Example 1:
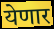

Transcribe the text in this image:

येणार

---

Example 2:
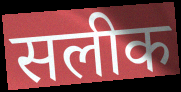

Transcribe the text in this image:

सलीक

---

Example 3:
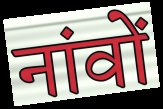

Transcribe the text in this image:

नांवों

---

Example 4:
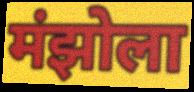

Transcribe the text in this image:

मंझोला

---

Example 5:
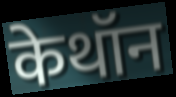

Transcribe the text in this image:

केथॉन